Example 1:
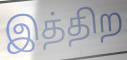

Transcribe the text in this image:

இத்திற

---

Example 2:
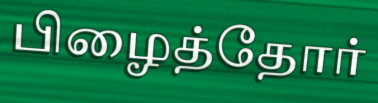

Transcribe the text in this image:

பிழைத்தோர்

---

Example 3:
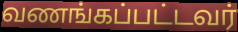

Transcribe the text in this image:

வணங்கப்பட்டவர்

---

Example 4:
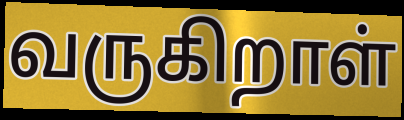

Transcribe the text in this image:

வருகிறாள்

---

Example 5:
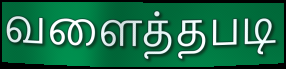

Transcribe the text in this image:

வளைத்தபடி